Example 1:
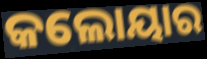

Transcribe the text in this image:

କଲୋୟାର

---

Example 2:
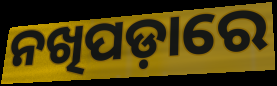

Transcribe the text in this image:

ନଖିପଡ଼ାରେ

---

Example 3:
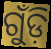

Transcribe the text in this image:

ଗୁଁଡ଼ି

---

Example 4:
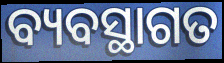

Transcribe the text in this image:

ବ୍ୟବସ୍ଥାଗତ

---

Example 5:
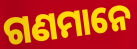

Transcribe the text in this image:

ଗଣମାନେ